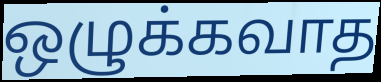
ஒழுக்கவாத